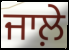
ਜਾਲ਼ੇ